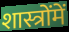
शास्त्रोंमें